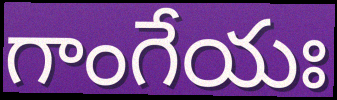
గాంగేయః